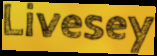
Livesey